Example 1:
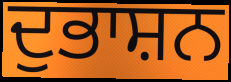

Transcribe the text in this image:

ਦੁਭਾਸ਼ਨ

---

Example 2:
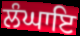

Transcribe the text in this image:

ਲੰਘਾਇ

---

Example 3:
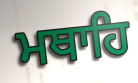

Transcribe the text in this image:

ਮਥਾਹਿ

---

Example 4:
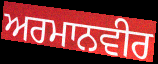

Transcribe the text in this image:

ਅਰਮਾਨਵੀਰ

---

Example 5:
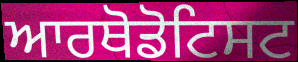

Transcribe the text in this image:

ਆਰਥੋਡੋਟਿਸਟ